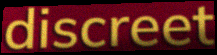
discreet